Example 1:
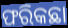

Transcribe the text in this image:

ଫରିକଛା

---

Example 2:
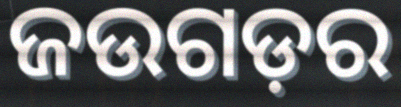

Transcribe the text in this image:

ଜଉଗଡ଼ର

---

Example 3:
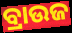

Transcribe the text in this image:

ବ୍ରାଉଜ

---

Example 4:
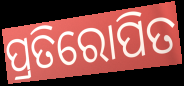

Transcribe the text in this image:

ପ୍ରତିରୋପିତ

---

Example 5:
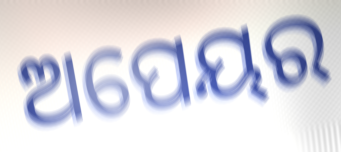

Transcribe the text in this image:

ଅପେୟର